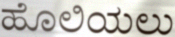
ಹೊಲಿಯಲು